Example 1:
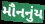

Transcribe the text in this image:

મૌનનુંય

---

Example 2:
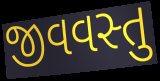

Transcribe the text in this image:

જીવવસ્તુ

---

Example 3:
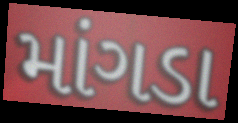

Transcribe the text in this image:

માંગડા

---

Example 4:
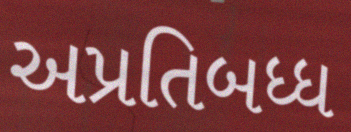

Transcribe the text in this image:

અપ્રતિબધ્ધ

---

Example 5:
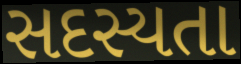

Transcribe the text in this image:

સદસ્યતા